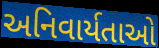
અનિવાર્યતાઓ